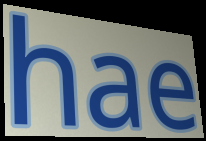
hae